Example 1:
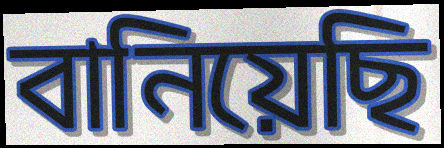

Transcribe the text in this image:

বানিয়েছি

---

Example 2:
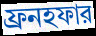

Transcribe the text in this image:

ফ্রনহফার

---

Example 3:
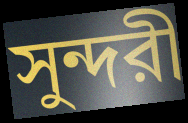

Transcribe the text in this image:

সুন্দরী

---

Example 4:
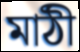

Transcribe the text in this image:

মাঠী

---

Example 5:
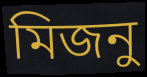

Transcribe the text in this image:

মিজনু